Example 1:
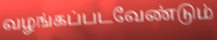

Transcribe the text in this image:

வழங்கப்படவேண்டும்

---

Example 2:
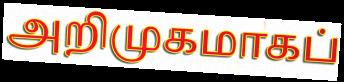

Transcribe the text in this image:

அறிமுகமாகப்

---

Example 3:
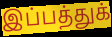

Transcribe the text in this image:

இப்பத்துக்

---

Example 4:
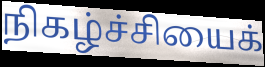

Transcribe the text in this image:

நிகழ்ச்சியைக்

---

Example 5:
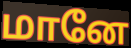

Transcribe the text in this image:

மானே